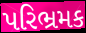
પરિભ્રમક